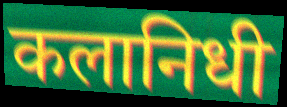
कलानिधी